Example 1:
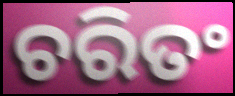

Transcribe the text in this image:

ଚରିତଂ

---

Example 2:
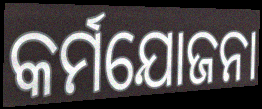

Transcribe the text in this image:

କର୍ମଯୋଜନା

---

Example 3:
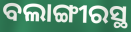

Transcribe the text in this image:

ବଲାଙ୍ଗୀରସ୍ଥ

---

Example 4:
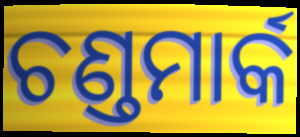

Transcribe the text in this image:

ଚଣ୍ଡମାର୍କ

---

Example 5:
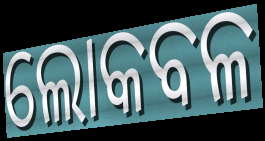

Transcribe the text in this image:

ଲୋକବଳ